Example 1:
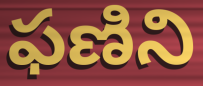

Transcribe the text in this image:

ఫణిని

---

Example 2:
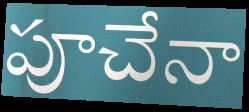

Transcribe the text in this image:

పూచేనా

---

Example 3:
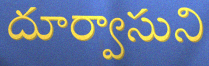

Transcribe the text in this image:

దూర్వాసుని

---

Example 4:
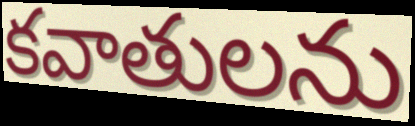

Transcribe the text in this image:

కవాతులను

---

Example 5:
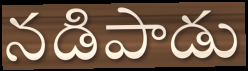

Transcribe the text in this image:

నడిపాడు